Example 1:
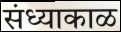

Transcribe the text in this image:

संध्याकाळ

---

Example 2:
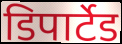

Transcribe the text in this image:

डिपार्टेड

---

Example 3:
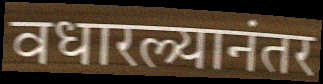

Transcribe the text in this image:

वधारल्यानंतर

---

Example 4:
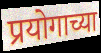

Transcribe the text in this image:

प्रयोगाच्या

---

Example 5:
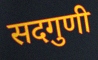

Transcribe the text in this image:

सदगुणी